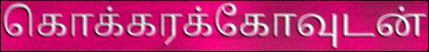
கொக்கரக்கோவுடன்